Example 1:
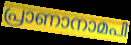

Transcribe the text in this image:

പ്രാണാനാമപി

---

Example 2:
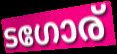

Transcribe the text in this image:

ടഗോര്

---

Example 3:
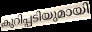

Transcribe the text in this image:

കുറിപ്പടിയുമായി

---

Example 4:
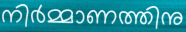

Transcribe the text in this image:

നിർമ്മാണത്തിനു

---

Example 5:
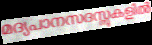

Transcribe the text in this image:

മദ്യപാനസദസ്സുകളിൽ